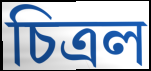
চিত্ৰল